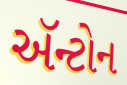
ઍન્ટોન